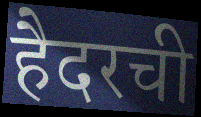
हैदरची